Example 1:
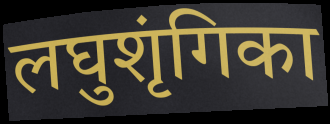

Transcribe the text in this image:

लघुशृंगिका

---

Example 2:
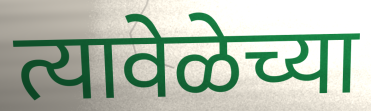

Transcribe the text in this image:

त्यावेळेच्या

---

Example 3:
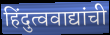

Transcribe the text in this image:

हिंदुत्ववाद्यांची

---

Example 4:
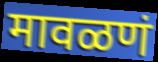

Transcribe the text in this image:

मावळणं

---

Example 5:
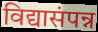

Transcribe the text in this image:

विद्यासंपन्न